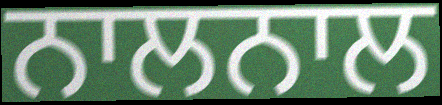
ਨਾਲਨਾਲ